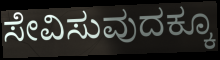
ಸೇವಿಸುವುದಕ್ಕೂ